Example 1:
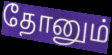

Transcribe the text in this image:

தோனும்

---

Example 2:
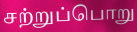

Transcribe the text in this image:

சற்றுப்பொறு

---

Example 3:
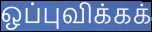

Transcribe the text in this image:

ஒப்புவிக்கக்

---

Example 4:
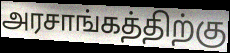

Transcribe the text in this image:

அரசாங்கத்திற்கு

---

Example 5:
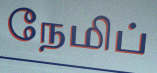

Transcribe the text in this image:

நேமிப்